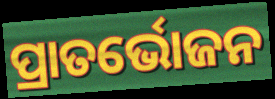
ପ୍ରାତର୍ଭୋଜନ